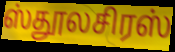
ஸ்தூலசிரஸ்